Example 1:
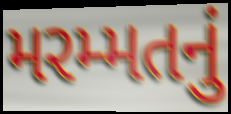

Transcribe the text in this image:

મરમ્મતનું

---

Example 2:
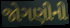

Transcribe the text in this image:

જોગણીની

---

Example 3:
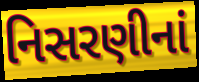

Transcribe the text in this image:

નિસરણીનાં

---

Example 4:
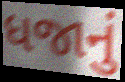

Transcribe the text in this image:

ધજાનું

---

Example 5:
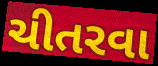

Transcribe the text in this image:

ચીતરવા